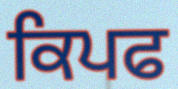
ਕਿਪਫ